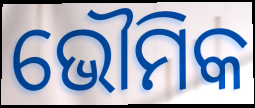
ଭୌମିକ